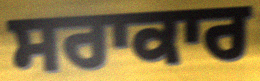
ਸਰਾਕਾਰ